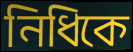
নিধিকে